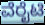
ವೆರೈಟಿ